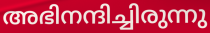
അഭിനന്ദിച്ചിരുന്നു